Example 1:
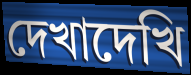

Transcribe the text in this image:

দেখাদেখি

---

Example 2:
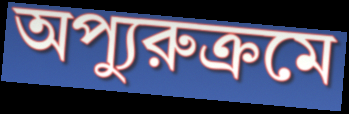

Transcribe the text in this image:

অপ্যুরুক্রমে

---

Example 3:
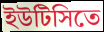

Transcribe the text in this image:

ইউটিসিতে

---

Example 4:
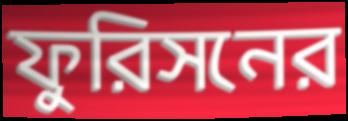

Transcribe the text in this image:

ফুরিসনের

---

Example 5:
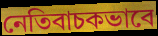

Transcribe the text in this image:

নেতিবাচকভাবে